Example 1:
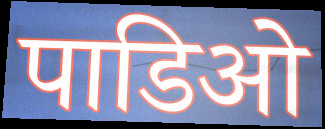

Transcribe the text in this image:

पाडिओ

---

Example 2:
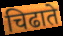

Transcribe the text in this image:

चिढाते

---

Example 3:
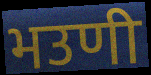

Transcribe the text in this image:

भउणी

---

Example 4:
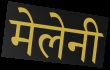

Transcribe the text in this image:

मेलेनी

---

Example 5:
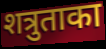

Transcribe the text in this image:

शत्रुताका